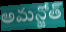
అమన్జోత్